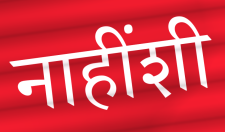
नाहींशी